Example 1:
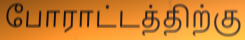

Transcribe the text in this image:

போராட்டத்திற்கு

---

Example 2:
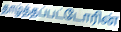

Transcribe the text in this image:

தாழ்த்தப்பட்டோரின்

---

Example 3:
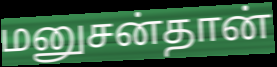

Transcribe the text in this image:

மனுசன்தான்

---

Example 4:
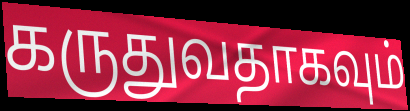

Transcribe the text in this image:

கருதுவதாகவும்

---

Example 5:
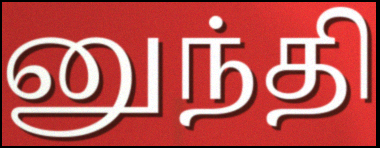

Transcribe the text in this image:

னுந்தி